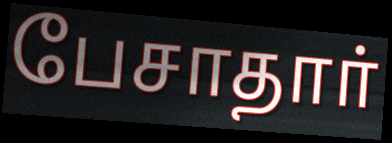
பேசாதார்